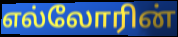
எல்லோரின்